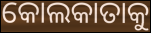
କୋଲକାତାକୁ